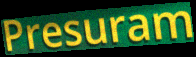
Presuram